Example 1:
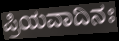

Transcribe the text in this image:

ಪ್ರಿಯವಾದಿನಃ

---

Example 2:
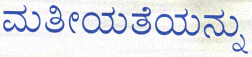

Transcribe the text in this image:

ಮತೀಯತೆಯನ್ನು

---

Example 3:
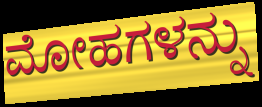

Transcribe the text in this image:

ಮೋಹಗಳನ್ನು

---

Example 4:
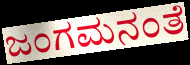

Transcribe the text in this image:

ಜಂಗಮನಂತೆ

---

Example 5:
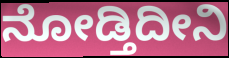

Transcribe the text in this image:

ನೋಡ್ತಿದೀನಿ